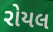
રોયલ